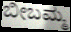
ಬೀಬಮ್ಮ